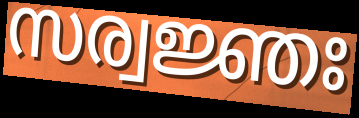
സര്വജ്ഞഃ